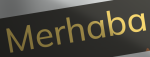
Merhaba